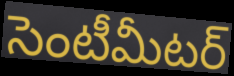
సెంటీమీటర్